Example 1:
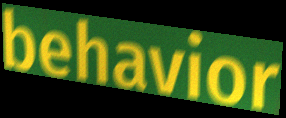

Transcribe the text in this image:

behavior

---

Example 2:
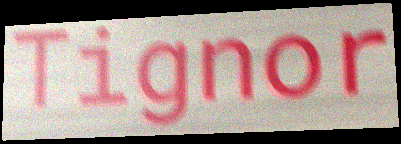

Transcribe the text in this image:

Tignor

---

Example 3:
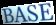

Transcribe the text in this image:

BASE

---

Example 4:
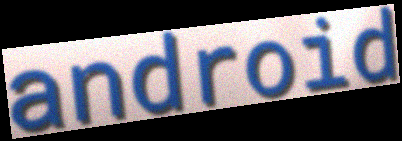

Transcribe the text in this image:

android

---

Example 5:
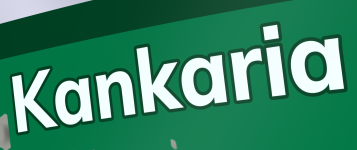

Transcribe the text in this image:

Kankaria